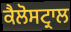
ਕੈਲੋਸਟ੍ਰਾਲ